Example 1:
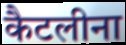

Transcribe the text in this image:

कैटलीना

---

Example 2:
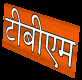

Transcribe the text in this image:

टीबीएम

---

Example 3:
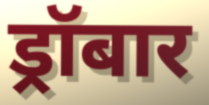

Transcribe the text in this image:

ड्रॉबार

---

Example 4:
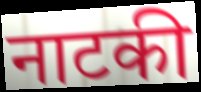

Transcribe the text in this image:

नाटकी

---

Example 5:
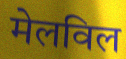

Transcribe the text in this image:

मेलविल